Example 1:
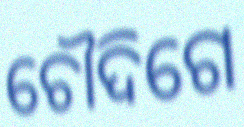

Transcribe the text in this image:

ଚୌଦିଗେ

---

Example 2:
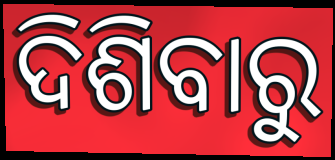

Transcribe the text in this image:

ଦିଶିବାରୁ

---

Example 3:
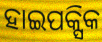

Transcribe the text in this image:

ହାଇପକ୍ସିକ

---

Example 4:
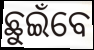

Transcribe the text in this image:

ଛୁଇଁବେ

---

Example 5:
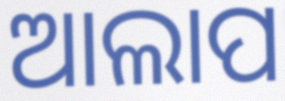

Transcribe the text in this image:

ଆଲାପ